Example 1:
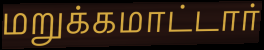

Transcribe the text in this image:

மறுக்கமாட்டார்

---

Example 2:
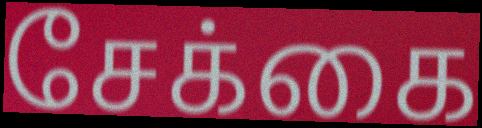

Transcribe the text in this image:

சேக்கை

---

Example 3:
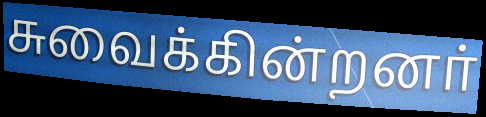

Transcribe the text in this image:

சுவைக்கின்றனர்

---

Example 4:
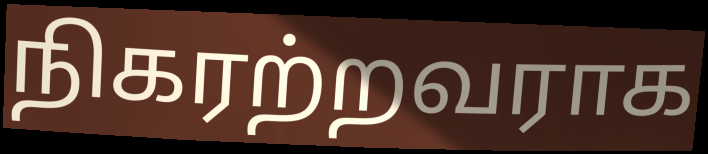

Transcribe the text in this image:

நிகரற்றவராக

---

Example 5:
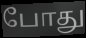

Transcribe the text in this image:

போது